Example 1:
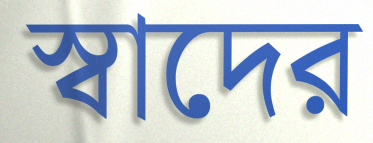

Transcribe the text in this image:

স্বাদের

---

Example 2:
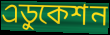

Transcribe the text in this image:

এডুকেশন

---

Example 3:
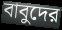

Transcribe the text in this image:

বাবুদের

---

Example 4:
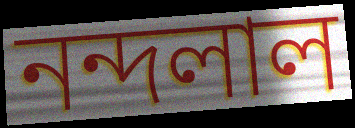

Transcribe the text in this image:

নন্দলাল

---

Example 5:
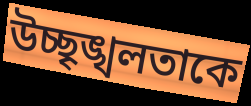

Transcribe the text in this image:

উচ্ছৃঙ্খলতাকে